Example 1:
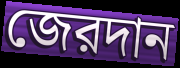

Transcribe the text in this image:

জেরদান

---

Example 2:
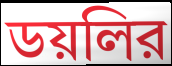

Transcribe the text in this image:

ডয়লির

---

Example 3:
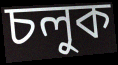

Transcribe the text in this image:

চলুক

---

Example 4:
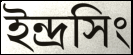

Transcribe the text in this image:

ইন্দ্রসিং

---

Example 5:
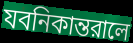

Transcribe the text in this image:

যবনিকান্তরালে